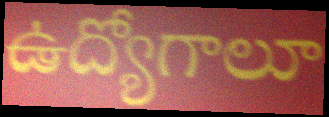
ఉద్యోగాలూ